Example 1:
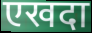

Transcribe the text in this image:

एखदा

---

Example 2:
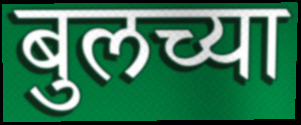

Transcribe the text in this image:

बुलच्या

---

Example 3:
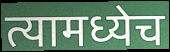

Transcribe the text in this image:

त्यामध्येच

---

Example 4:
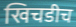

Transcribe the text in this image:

खिचडीच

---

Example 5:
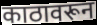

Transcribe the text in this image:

काठावरून